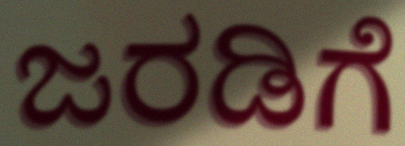
ಜರಡಿಗೆ